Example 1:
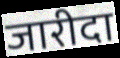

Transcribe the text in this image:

जारीदा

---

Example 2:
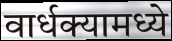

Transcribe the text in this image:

वार्धक्यामध्ये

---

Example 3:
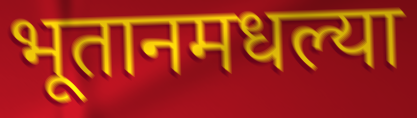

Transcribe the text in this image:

भूतानमधल्या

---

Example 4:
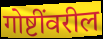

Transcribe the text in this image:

गोष्टींवरील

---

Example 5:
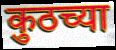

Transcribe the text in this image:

कुठच्या